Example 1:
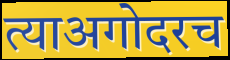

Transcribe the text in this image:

त्याअगोदरच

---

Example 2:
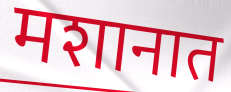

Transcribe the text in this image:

मशानात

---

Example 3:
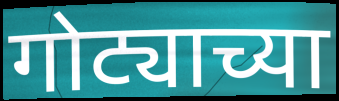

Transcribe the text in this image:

गोट्याच्या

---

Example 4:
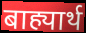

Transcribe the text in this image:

बाह्यार्थ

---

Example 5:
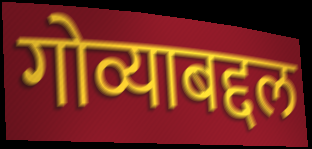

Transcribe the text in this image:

गोव्याबद्दल